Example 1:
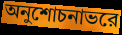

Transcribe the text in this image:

অনুশোচনাভরে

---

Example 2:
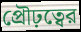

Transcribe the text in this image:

প্রৌঢ়ত্বের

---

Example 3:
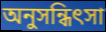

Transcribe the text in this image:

অনুসন্ধিৎসা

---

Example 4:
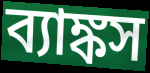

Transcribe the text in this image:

ব্যাঙ্কস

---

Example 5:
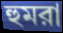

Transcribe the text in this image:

হুমরা